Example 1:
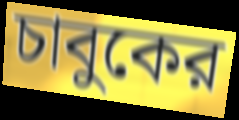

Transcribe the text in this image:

চাবুকের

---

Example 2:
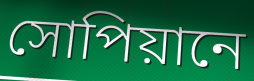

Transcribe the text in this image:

সোপিয়ানে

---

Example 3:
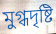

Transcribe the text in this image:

মুগ্ধদৃষ্টি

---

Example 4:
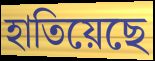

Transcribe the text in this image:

হাতিয়েছে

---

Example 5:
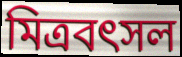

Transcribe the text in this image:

মিত্রবৎসল